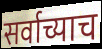
सर्वाच्याच